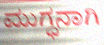
ಮುಗ್ಧನಾಗಿ